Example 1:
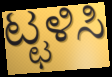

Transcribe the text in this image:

ಟ್ಟಳಿಸಿ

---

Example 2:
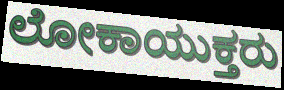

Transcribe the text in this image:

ಲೋಕಾಯುಕ್ತರು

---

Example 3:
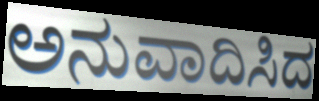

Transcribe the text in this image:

ಅನುವಾದಿಸಿದ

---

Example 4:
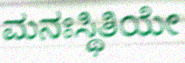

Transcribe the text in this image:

ಮನಃಸ್ಥಿತಿಯೇ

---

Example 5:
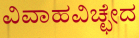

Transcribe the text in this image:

ವಿವಾಹವಿಚ್ಛೇದ